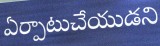
ఏర్పాటుచేయుడని